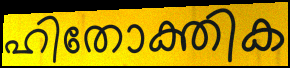
ഹിതോക്തിക